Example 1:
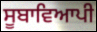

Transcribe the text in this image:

ਸੂਬਾਵਿਆਪੀ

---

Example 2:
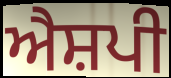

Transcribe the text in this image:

ਐਸ਼ਪੀ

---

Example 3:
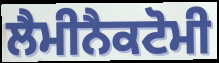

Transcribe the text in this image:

ਲੈਮੀਨੈਕਟੋਮੀ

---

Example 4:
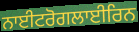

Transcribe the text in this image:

ਨਾਈਟਰੋਗਲਾਈਰਿਨ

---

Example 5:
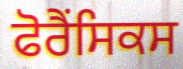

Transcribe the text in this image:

ਫੋਰੈਂਸਿਕਸ